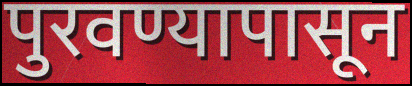
पुरवण्यापासून